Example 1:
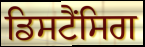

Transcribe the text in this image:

ਡਿਸਟੈਂਸਿਗ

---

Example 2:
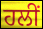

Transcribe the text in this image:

ਹਲੀਂ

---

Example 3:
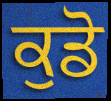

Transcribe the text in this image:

ਕੁਡੋ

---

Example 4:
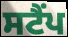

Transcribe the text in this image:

ਸਟੈਂਪ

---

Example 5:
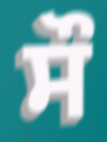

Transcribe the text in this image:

ਸੌ